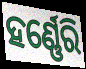
ହର୍ଣ୍ଣେରି